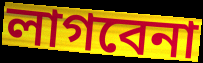
লাগবেনা